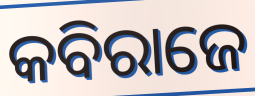
କବିରାଜେ